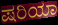
ಷರಿಯಾ